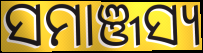
ସମାଞ୍ଜସ୍ୟ